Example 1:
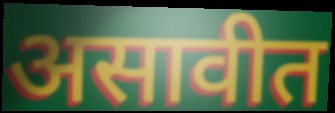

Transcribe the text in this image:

असावीत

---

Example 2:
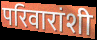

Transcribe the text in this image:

परिवारांशी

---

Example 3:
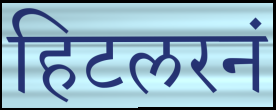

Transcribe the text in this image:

हिटलरनं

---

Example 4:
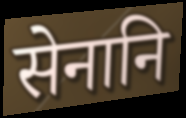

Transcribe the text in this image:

सेनानि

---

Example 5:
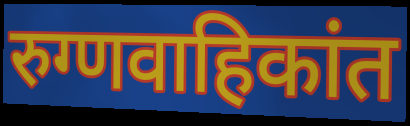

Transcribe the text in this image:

रुग्णवाहिकांत